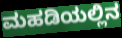
ಮಹಡಿಯಲ್ಲಿನ